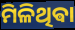
ମିଳିଥିଵା